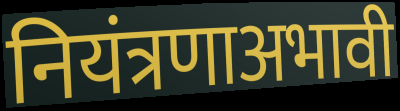
नियंत्रणाअभावी